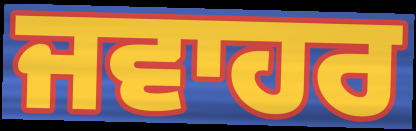
ਜਵਾਹਰ